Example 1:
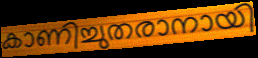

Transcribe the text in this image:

കാണിച്ചുതരാനായി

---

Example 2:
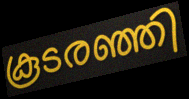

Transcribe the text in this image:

കൂടരഞ്ഞി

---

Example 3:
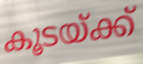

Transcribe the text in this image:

കൂടയ്ക്ക്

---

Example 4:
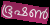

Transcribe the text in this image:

ഭൂഷൺ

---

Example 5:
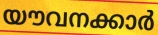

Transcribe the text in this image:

യൗവനക്കാർ